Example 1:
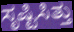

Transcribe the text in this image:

ಸೃಷ್ಟಿಸಿತ್ತು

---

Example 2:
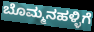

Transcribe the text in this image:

ಬೊಮ್ಮನಹಳ್ಳಿಗೆ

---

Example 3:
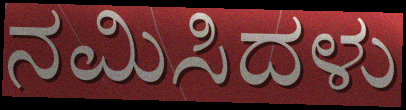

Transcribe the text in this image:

ನಮಿಸಿದಳು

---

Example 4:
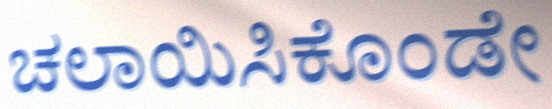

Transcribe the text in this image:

ಚಲಾಯಿಸಿಕೊಂಡೇ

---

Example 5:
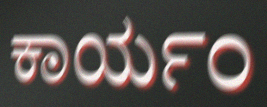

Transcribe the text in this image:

ಕಾರ್ಯಂ